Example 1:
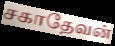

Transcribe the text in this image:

சகாதேவன்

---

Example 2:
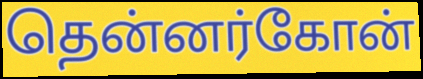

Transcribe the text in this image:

தென்னர்கோன்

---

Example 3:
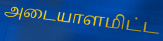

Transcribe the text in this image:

அடையாளமிட்ட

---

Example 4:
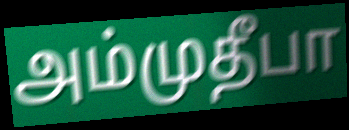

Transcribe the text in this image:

அம்முதீபா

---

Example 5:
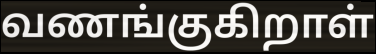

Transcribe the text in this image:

வணங்குகிறாள்